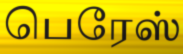
பெரேஸ்